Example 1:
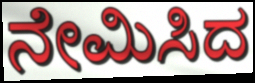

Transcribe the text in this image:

ನೇಮಿಸಿದ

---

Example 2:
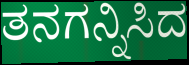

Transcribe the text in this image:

ತನಗನ್ನಿಸಿದ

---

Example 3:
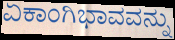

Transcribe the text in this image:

ಏಕಾಂಗಿಭಾವವನ್ನು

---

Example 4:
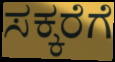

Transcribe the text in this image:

ಸಕ್ಕರೆಗೆ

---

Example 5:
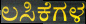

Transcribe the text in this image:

ಲಸಿಕೆಗಳ